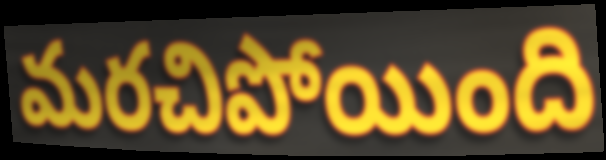
మరచిపోయింది